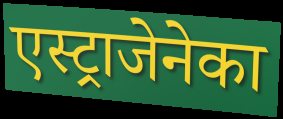
एस्ट्राजेनेका